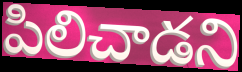
పిలిచాడని